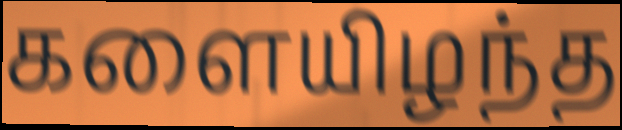
களையிழந்த